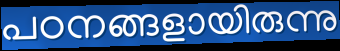
പഠനങ്ങളായിരുന്നു